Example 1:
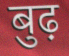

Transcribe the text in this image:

बुढ़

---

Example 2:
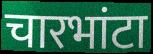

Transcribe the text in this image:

चारभांटा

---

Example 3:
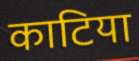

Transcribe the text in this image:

काटिया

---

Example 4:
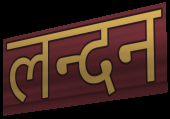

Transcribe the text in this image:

लन्दन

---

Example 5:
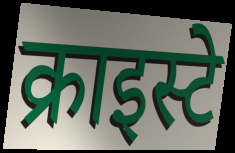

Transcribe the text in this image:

क्राइस्टे